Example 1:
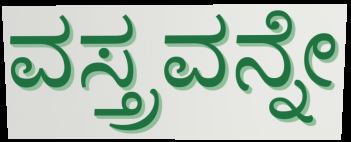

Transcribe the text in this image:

ವಸ್ತ್ರವನ್ನೇ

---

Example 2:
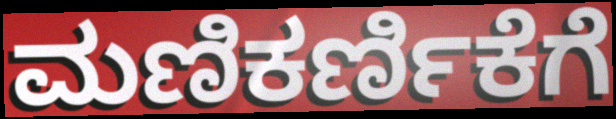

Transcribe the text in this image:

ಮಣಿಕರ್ಣಿಕೆಗೆ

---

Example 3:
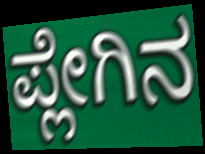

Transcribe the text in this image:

ಪ್ಲೇಗಿನ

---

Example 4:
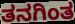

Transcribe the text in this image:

ತನಗಿಂತ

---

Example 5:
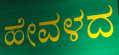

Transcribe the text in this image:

ಹೇವಳದ